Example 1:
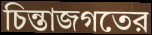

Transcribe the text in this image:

চিন্তাজগতের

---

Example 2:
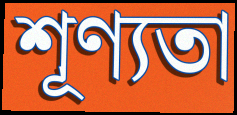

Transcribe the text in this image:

শূণ্যতা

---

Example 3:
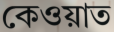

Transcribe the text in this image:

কেওয়াত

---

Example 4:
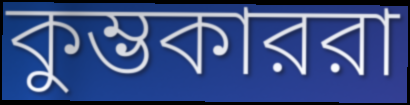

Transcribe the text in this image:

কুম্ভকাররা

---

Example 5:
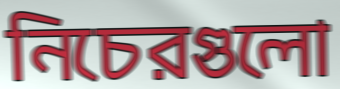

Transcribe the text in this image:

নিচেরগুলো